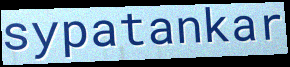
sypatankar